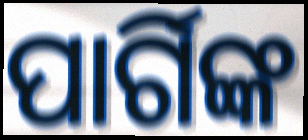
ପାର୍ଗିଙ୍କ